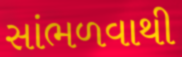
સાંભળવાથી